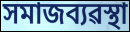
সমাজব্যৱস্থা